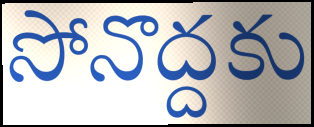
సోనొద్దకు